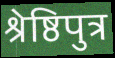
श्रेष्ठिपुत्र